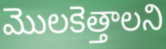
మొలకెత్తాలని